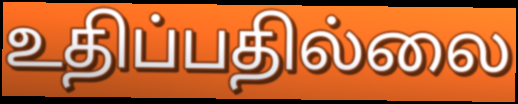
உதிப்பதில்லை